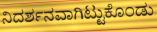
ನಿದರ್ಶನವಾಗಿಟ್ಟುಕೊಂಡು